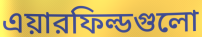
এয়ারফিল্ডগুলো